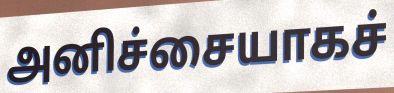
அனிச்சையாகச்